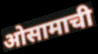
ओसामाची